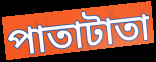
পাতাটাতা